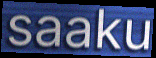
saaku